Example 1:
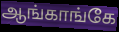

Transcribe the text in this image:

ஆங்காங்கே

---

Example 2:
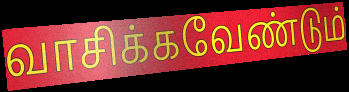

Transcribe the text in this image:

வாசிக்கவேண்டும்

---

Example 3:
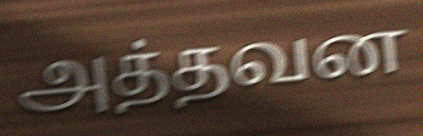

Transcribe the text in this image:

அத்தவன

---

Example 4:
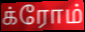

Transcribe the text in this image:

க்ரோம்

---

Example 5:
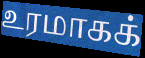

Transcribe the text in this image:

உரமாகக்